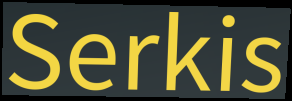
Serkis